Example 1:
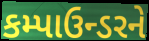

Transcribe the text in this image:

કમ્પાઉન્ડરને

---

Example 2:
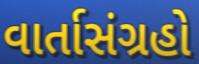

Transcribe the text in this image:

વાર્તાસંગ્રહો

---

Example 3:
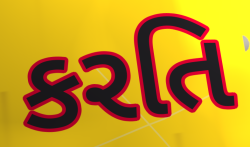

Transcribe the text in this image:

કરતિ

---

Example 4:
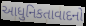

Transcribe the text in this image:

આધુનિકતાવાદનો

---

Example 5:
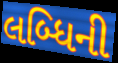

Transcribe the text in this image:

લબ્ધિની